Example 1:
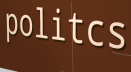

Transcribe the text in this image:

politcs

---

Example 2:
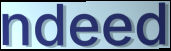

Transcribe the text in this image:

ndeed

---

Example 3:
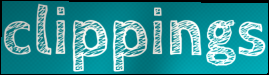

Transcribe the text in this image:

clippings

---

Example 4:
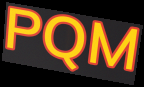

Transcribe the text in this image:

PQM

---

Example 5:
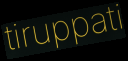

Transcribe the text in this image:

tiruppati